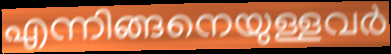
എന്നിങ്ങനെയുള്ളവർ